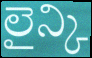
లైన్కి